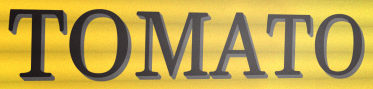
TOMATO